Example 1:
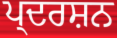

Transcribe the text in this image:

ਪ੍ਦਰਸ਼ਨ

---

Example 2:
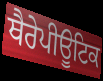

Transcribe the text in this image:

ਥੈਰੇਪੀਊਟਿਕ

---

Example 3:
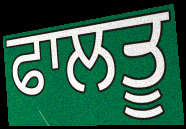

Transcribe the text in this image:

ਫਾਲਤੂ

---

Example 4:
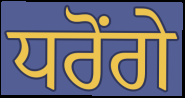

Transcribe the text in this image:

ਧਰੋਂਗੇ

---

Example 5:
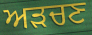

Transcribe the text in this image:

ਅੜਚਣ